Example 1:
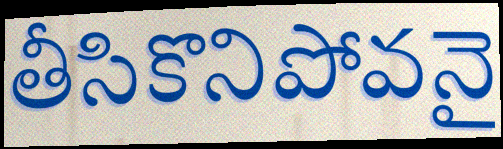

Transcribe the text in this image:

తీసికొనిపోవనై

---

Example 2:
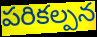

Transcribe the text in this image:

పరికల్పన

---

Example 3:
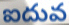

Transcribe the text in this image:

ఐదువ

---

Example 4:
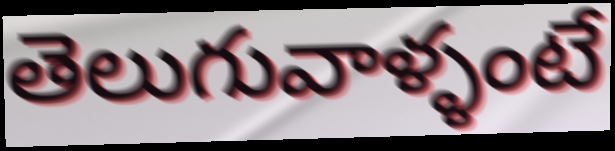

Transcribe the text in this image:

తెలుగువాళ్ళంటే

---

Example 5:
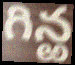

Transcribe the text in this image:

గిన్ఱ